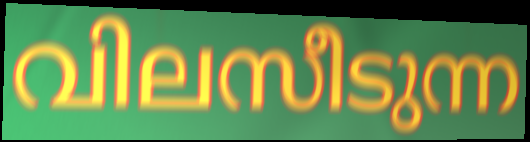
വിലസീടുന്ന